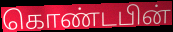
கொண்டபின்